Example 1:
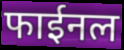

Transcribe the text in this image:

फाईनल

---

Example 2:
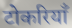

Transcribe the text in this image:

टोकरियाँ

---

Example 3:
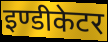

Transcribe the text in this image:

इण्डीकेटर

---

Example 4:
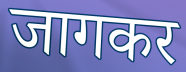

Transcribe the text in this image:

जागकर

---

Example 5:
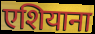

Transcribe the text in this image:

एशियाना